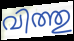
വിത്തു